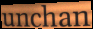
unchan